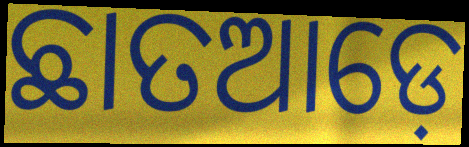
ଛାତଆଡ଼େ